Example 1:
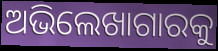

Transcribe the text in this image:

ଅଭିଲେଖାଗାରକୁ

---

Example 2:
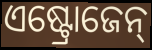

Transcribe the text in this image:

ଏଷ୍ଟ୍ରୋଜେନ୍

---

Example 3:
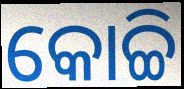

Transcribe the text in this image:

କୋଚ୍ଚି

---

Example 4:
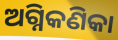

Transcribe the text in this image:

ଅଗ୍ନିକଣିକା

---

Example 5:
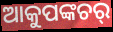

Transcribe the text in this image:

ଆକୁପଙ୍କଚର୍